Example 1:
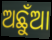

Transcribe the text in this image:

ଅଛୁଁଆ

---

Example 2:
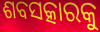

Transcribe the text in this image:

ଶବସତ୍କାରକୁ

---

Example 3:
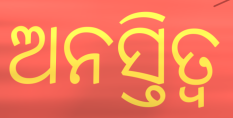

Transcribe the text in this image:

ଅନସ୍ତିତ୍ୱ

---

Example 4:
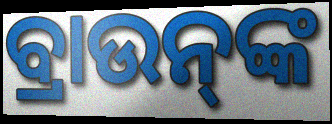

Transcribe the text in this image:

ବ୍ରାଉନ୍‌ଙ୍କ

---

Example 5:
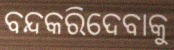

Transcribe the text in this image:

ବନ୍ଦକରିଦେବାକୁ